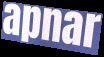
apnar